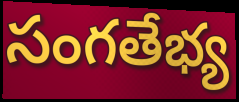
సంగతేభ్య